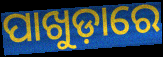
ପାଖୁଡ଼ାରେ